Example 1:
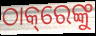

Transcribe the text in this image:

ଠାକ୍‌ରେଙ୍କୁ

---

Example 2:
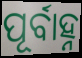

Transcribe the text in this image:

ପୂର୍ବାହ୍ନ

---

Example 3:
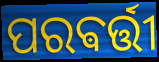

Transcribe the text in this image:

ପରଵର୍ତ୍ତୀ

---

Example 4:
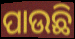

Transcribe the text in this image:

ପାଉଛି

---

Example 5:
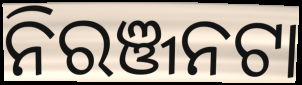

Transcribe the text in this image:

ନିରଞ୍ଜନଟା